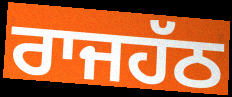
ਰਾਜਹੱਠ